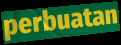
perbuatan